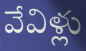
వేవిళ్లు